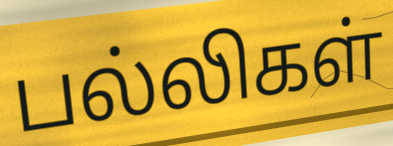
பல்லிகள்